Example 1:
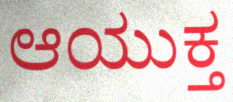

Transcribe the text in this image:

ಆಯುಕ್ತ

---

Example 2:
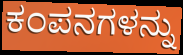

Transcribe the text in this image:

ಕಂಪನಗಳನ್ನು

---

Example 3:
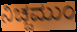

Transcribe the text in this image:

ನಿಚ್ಚಮುಂ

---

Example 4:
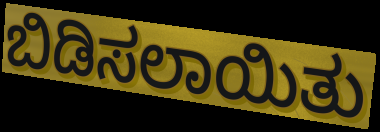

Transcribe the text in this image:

ಬಿಡಿಸಲಾಯಿತು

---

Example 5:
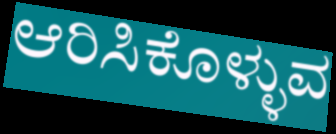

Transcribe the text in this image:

ಆರಿಸಿಕೊಳ್ಳುವ